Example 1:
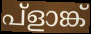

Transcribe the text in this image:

പ്ളാങ്ക്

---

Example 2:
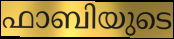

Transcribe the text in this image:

ഫാബിയുടെ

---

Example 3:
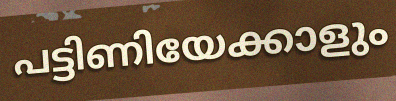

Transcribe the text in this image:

പട്ടിണിയേക്കാളും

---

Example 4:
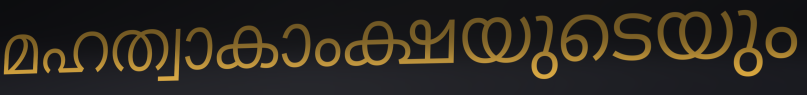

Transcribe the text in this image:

മഹത്വാകാംക്ഷയുടെയും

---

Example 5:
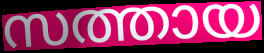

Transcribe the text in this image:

സത്തായ